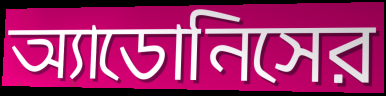
অ্যাডোনিসের